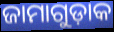
ଜାମାଗୁଡ଼ାକ